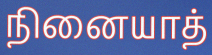
நினையாத்